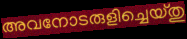
അവനോടരുളിച്ചെയ്തു